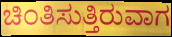
ಚಿಂತಿಸುತ್ತಿರುವಾಗ